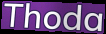
Thoda